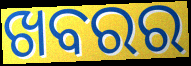
ଖବରର